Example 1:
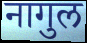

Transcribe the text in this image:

नागुल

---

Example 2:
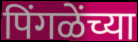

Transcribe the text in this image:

पिंगळेंच्या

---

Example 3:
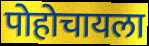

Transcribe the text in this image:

पोहोचायला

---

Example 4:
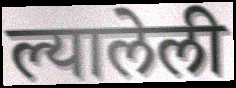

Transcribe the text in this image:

ल्यालेली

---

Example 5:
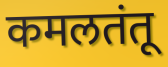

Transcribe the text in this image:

कमलतंतू